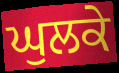
ਘੁਲਕੇ